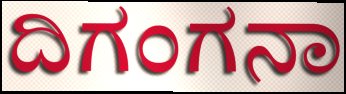
ದಿಗಂಗನಾ